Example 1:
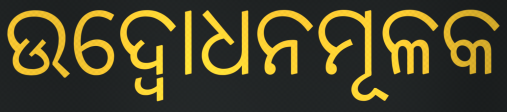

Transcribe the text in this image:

ଉଦ୍ବୋଧନମୂଳକ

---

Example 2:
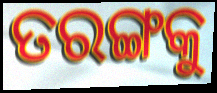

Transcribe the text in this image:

ତରଙ୍ଗକୁ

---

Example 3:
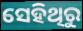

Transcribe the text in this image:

ସେହିଥିରୁ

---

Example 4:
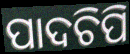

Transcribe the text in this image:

ପାଦଚିପି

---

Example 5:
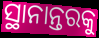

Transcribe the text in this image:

ସ୍ଥାନାନ୍ତରକୁ